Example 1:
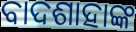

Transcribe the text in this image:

ବାଦଶାହାଙ୍କ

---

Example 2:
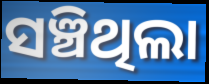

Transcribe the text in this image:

ସଞ୍ଚିଥିଲା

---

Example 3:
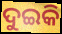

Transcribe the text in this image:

ଦୁଇକି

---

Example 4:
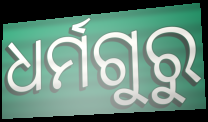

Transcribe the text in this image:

ଧର୍ମଗୁରୁ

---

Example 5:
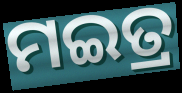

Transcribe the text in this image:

ମଇତ୍ର